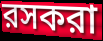
রসকরা